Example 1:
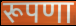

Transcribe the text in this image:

रूपणा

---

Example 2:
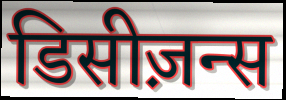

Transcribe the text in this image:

डिसीज़न्स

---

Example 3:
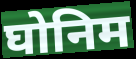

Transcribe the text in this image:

घोनिम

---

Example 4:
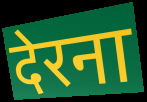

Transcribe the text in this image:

देरना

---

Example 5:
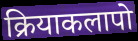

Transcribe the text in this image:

क्रियाकलापो